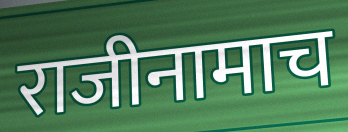
राजीनामाच